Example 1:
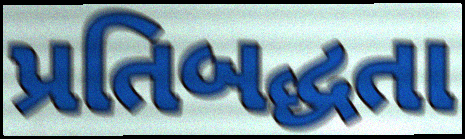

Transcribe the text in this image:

પ્રતિબદ્ધતા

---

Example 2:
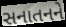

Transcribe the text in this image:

સનાતનને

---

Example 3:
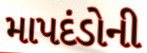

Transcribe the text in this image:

માપદંડોની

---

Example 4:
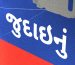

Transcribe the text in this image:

જુદાઇનું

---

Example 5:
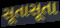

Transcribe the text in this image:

સૂતાસૂતા